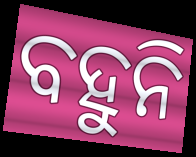
ବହୁନି